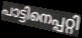
പാട്ടിനെപ്പറ്റി